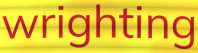
wrighting